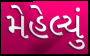
મેહેલ્યું